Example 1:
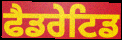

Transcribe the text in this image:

ਫੈਡਰੇਟਿਡ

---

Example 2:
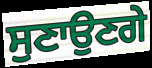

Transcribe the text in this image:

ਸੁਣਾਉਣਗੇ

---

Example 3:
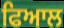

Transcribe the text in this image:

ਫਿਆਲ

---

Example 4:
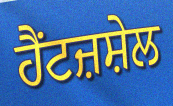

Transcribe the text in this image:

ਹੈਂਟਜ਼ਸ਼ੇਲ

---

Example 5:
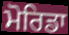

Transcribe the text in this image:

ਮੋਰਿਡਾ